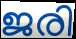
ജരി